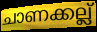
ചാണക്കല്ല്